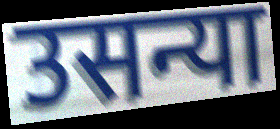
उसन्या